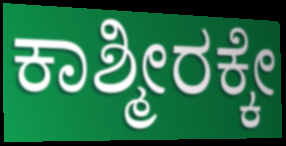
ಕಾಶ್ಮೀರಕ್ಕೇ